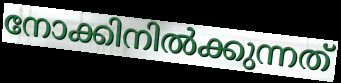
നോക്കിനിൽക്കുന്നത്